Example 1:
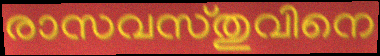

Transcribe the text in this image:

രാസവസ്തുവിനെ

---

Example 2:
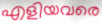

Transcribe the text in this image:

എളിയവരെ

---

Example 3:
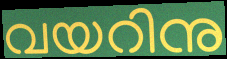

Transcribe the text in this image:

വയറിനു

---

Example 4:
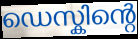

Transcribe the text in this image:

ഡെസ്കിന്റെ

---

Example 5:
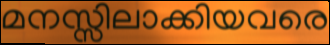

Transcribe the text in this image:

മനസ്സിലാക്കിയവരെ